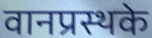
वानप्रस्थके